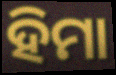
ହିମା